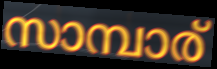
സാമ്പാര്